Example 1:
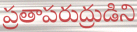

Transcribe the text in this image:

ప్రతాపరుద్రుడిని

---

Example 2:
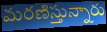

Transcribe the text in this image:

మరణిస్తున్నారు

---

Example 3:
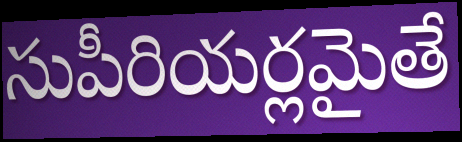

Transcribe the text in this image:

సుపీరియర్లమైతే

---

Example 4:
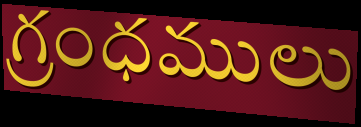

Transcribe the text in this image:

గ్రంధములు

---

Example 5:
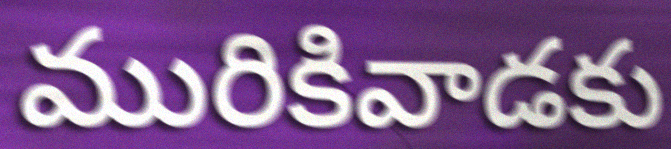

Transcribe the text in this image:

మురికివాడకు